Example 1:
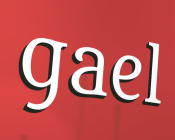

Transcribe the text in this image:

gael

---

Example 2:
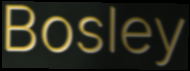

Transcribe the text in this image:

Bosley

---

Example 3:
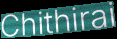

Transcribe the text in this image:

Chithirai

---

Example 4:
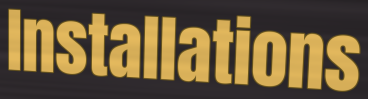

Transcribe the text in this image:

Installations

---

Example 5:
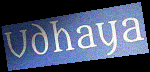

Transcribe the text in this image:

Udhaya